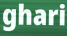
ghari